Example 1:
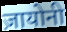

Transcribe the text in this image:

ज़ायोनी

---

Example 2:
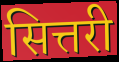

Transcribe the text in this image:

सित्तरी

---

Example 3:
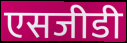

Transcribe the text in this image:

एसजीडी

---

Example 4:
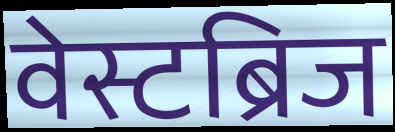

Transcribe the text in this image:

वेस्टब्रिज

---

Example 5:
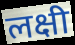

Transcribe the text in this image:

लक्षी